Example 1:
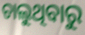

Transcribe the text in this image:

ଚାଲୁଥିବାରୁ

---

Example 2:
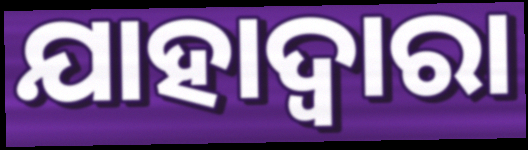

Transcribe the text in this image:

ଯାହାଦ୍ୱାରା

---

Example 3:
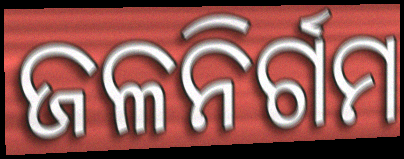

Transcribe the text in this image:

ଜଳନିର୍ଗମ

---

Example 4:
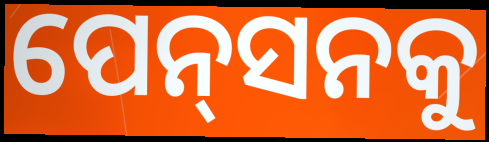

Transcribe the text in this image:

ପେନ୍‌ସନକୁ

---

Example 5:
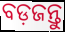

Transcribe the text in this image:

ବଡ଼ଜନ୍ତୁ